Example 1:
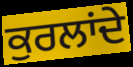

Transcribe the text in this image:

ਕੁਰਲਾਂਦੇ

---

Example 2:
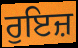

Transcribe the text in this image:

ਰੁਇਜ਼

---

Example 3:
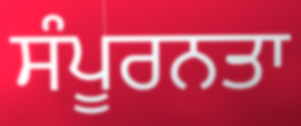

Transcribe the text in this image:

ਸੰਪੂਰਨਤਾ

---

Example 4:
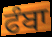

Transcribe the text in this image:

ਫੰਬਾ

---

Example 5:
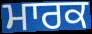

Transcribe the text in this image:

ਮਾਰਕ